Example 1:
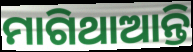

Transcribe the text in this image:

ମାଗିଥାଆନ୍ତି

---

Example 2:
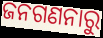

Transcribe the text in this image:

ଜନଗଣନାରୁ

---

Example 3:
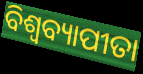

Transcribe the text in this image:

ବିଶ୍ୱବ୍ୟାପୀତା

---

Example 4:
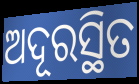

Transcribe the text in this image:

ଅଦୂରସ୍ଥିତ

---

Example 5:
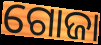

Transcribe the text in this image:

ଗୋଜା